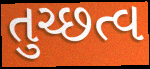
તુચ્છત્વ